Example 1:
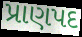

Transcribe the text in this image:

પ્રાણપદ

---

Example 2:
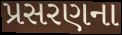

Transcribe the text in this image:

પ્રસરણના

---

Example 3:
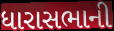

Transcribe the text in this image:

ધારાસભાની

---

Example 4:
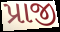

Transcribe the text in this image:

પ્રાજી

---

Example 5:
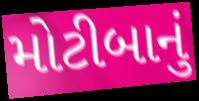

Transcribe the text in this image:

મોટીબાનું